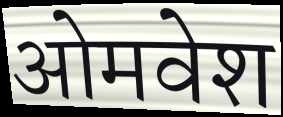
ओमवेश